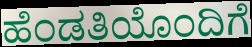
ಹೆಂಡತಿಯೊಂದಿಗೆ